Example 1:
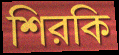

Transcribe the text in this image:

শিরকি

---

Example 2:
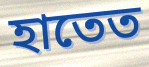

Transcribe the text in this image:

হাতেত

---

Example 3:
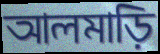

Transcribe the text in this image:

আলমাড়ি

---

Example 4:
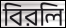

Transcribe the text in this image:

বিরলি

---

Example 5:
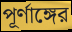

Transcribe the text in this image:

পূর্ণাঙ্গের